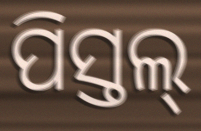
ପିସ୍ତଲ୍